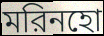
মরিনহো